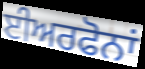
ਈਅਰਫੋਨਾਂ